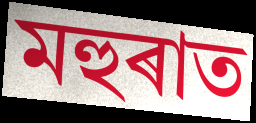
মহুৰাত